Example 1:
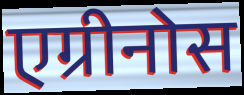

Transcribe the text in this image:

एग्रीनोस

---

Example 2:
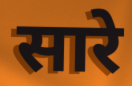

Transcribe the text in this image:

सारे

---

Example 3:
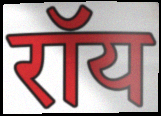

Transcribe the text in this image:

रॉय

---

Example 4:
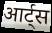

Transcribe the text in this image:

आर्ट्स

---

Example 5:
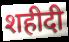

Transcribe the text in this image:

शहीदी